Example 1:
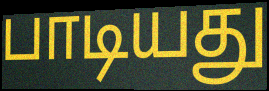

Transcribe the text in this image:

பாடியது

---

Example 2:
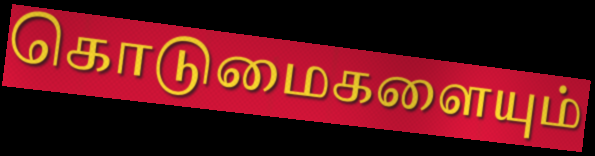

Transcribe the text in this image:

கொடுமைகளையும்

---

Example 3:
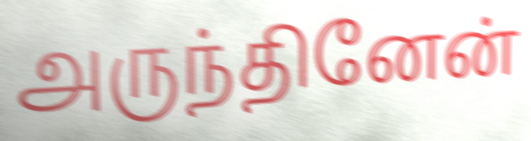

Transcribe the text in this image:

அருந்தினேன்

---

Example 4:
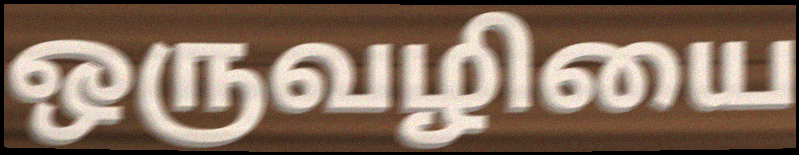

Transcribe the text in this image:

ஒருவழியை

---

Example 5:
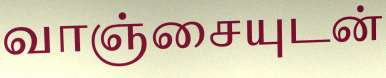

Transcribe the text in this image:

வாஞ்சையுடன்